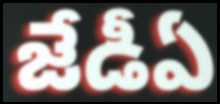
జేడీఏ